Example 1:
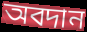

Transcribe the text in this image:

অবদান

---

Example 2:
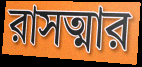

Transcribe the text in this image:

রাসত্মার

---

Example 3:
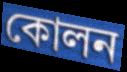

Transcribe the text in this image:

কোলন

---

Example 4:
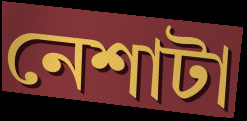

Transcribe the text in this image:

নেশাটা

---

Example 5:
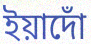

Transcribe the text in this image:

ইয়াদোঁ